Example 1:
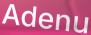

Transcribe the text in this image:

Adenu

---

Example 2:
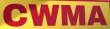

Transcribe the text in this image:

CWMA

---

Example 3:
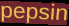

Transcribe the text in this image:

pepsin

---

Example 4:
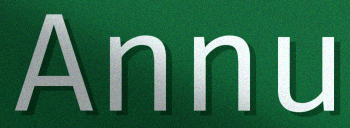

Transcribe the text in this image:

Annu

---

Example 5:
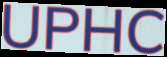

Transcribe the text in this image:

UPHC